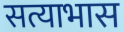
सत्याभास